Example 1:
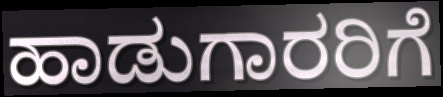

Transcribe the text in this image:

ಹಾಡುಗಾರರಿಗೆ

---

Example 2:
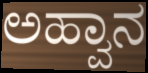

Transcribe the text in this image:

ಅಹ್ವಾನ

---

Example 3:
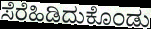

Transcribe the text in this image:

ಸೆರೆಹಿಡಿದುಕೊಂಡು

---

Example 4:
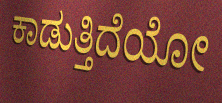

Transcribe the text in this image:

ಕಾಡುತ್ತಿದೆಯೋ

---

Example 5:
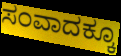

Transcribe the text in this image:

ಸಂವಾದಕ್ಕೂ